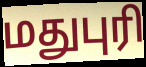
மதுபுரி